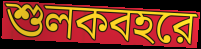
শুলকবহরে